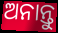
ଅନାନ୍ତୁ